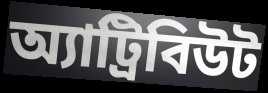
অ্যাট্রিবিউট